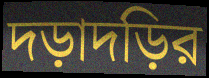
দড়াদড়ির